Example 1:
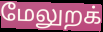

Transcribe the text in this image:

மேலுறக்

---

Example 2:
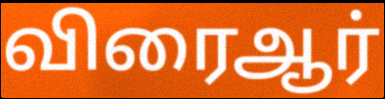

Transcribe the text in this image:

விரைஆர்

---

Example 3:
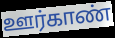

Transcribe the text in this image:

ஊர்காண்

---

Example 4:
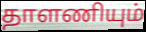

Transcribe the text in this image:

தாளணியும்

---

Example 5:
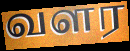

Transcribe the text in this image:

வளர